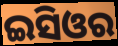
ଇସିଓର